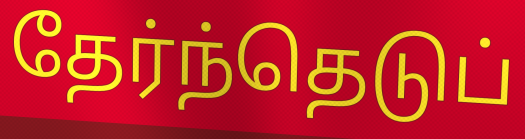
தேர்ந்தெடுப்